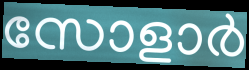
സോളാർ